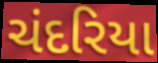
ચંદરિયા